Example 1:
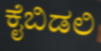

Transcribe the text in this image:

ಕೈಬಿಡಲಿ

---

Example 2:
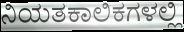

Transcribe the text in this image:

ನಿಯತಕಾಲಿಕಗಳಲ್ಲಿ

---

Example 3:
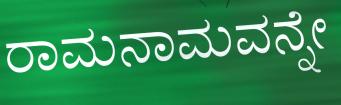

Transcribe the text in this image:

ರಾಮನಾಮವನ್ನೇ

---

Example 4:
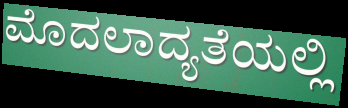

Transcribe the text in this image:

ಮೊದಲಾದ್ಯತೆಯಲ್ಲಿ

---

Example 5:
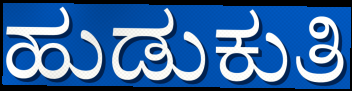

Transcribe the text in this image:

ಹುಡುಕುತಿ